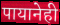
पायानेही